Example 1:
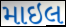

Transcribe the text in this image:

માઇલ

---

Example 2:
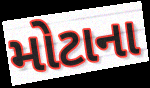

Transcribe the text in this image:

મોટાના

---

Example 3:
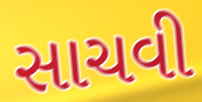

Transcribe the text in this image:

સાચવી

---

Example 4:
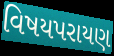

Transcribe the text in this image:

વિષયપરાયણ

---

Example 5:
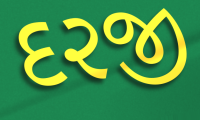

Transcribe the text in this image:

દરજી